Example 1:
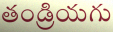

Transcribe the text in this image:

తండ్రియగు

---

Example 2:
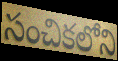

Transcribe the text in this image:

సంచికలోని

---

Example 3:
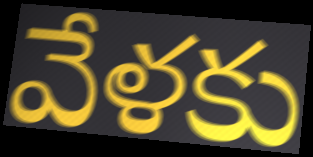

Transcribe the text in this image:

వేళకు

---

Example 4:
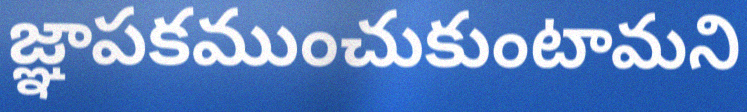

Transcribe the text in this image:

జ్ఞాపకముంచుకుంటామని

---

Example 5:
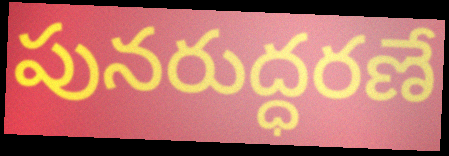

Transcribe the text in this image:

పునరుద్ధరణే